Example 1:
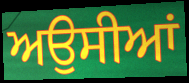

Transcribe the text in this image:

ਅਉਸੀਆਂ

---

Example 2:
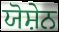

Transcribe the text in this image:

ਯੋਸ਼ੇਨ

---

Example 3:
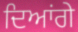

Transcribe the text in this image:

ਦਿਆਂਗੇ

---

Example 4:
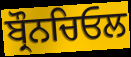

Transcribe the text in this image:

ਬ੍ਰੌਨਚਿਓਲ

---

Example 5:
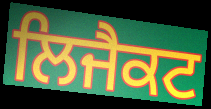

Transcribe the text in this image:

ਲਿਜੈਕਟ